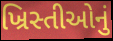
ખ્રિસ્તીઓનું